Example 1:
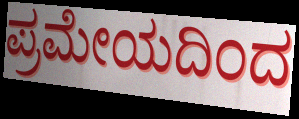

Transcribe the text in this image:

ಪ್ರಮೇಯದಿಂದ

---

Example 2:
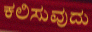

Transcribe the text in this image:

ಕಲಿಸುವುದು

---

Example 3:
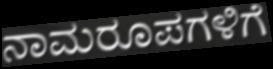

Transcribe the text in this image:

ನಾಮರೂಪಗಳಿಗೆ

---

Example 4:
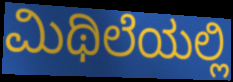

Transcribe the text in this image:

ಮಿಥಿಲೆಯಲ್ಲಿ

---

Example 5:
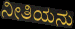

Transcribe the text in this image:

ನೀತಿಯನು